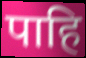
पाहि